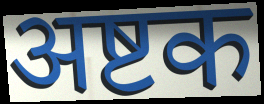
अष्टक